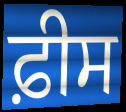
ਫ਼ੀਸ